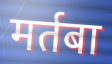
मर्तबा